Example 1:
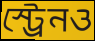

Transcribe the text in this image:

স্ট্রেনও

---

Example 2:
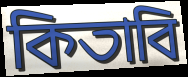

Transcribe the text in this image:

কিতাবি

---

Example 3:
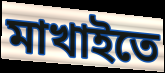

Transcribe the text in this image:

মাখাইতে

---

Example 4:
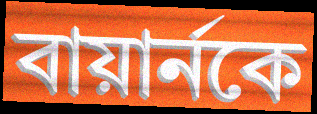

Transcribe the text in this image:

বায়ার্নকে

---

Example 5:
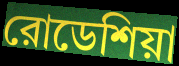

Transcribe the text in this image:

রোডেশিয়া